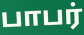
பாபர்